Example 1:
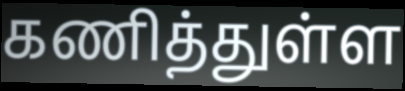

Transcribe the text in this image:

கணித்துள்ள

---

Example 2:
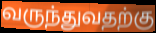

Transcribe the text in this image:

வருந்துவதற்கு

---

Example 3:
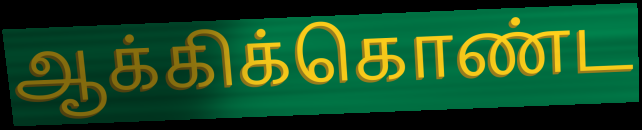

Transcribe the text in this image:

ஆக்கிக்கொண்ட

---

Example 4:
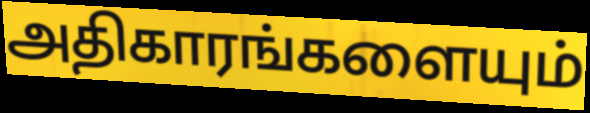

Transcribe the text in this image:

அதிகாரங்களையும்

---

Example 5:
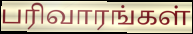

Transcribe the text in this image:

பரிவாரங்கள்